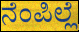
ನೆಂಪಿಲ್ಲೆ